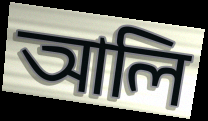
আলি